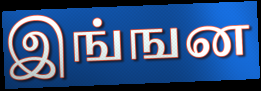
இங்ஙன